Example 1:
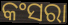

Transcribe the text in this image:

କଂସରା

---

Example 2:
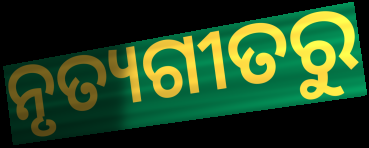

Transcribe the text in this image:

ନୃତ୍ୟଗୀତରୁ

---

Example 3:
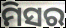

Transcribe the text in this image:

ମିସର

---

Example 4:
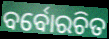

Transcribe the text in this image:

ବର୍ବୋରଚିତ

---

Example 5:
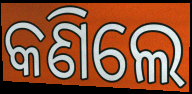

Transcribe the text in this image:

କଣିଲେ